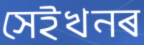
সেইখনৰ